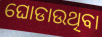
ଘୋଡାଉଥିବା